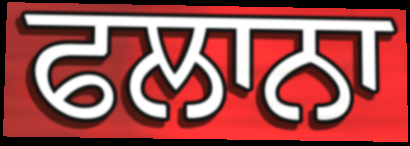
ਫਲਾਨਾ